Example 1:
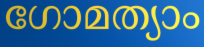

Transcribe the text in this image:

ഗോമത്യാം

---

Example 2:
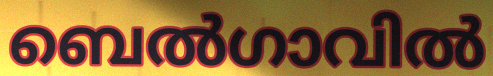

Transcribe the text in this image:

ബെൽഗാവിൽ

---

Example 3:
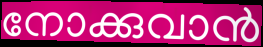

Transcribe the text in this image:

നോക്കുവാൻ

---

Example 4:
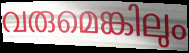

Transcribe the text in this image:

വരുമെങ്കിലും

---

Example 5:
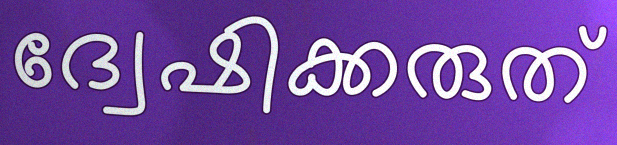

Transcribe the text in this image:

ദ്വേഷിക്കരുത്